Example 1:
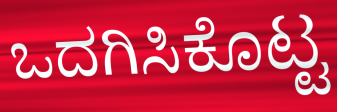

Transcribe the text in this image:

ಒದಗಿಸಿಕೊಟ್ಟ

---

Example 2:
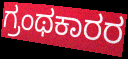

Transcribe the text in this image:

ಗ್ರಂಥಕಾರರ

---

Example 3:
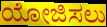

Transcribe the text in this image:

ಯೋಜಿಸಲು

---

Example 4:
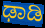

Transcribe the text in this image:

ಢಾಡಿ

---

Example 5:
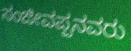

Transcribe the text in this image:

ಸಂಜೀವಪ್ಪನವರು